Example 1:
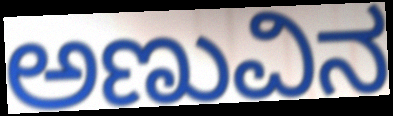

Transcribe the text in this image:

ಅಣುವಿನ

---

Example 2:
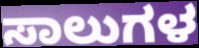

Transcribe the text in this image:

ಸಾಲುಗಳ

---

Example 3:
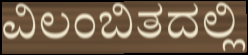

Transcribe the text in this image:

ವಿಲಂಬಿತದಲ್ಲಿ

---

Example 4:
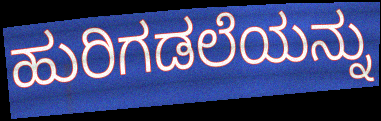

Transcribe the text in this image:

ಹುರಿಗಡಲೆಯನ್ನು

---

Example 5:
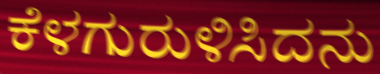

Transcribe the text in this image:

ಕೆಳಗುರುಳಿಸಿದನು